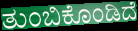
ತುಂಬಿಕೊಂಡಿದೆ